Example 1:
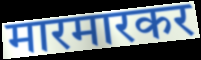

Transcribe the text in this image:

मारमारकर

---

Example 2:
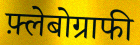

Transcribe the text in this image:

फ़्लेबोग्राफी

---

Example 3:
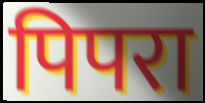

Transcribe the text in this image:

पिपरा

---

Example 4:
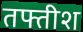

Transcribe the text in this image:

तफ्तीश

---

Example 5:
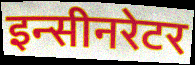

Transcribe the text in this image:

इन्सीनरेटर